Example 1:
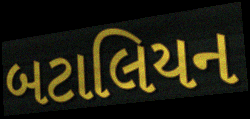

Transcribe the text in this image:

બટાલિયન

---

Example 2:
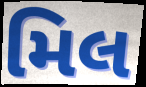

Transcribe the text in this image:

મિલ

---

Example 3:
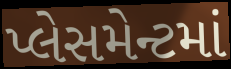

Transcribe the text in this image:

પ્લેસમેન્ટમાં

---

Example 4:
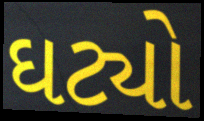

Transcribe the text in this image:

ઘટ્યો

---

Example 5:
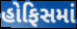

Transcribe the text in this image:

હોફિસમાં